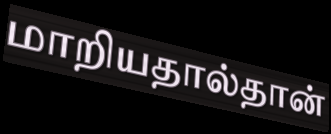
மாறியதால்தான்